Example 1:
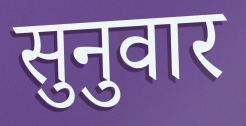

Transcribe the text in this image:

सुनुवार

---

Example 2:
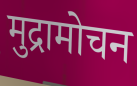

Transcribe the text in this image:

मुद्रामोचन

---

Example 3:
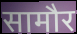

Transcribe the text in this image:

सामौर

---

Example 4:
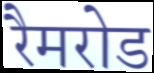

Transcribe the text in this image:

रैमरोड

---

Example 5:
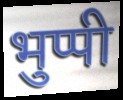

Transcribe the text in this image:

भुप्पी